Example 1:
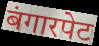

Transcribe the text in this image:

बंगारपेट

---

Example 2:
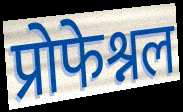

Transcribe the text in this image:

प्रोफेश्नल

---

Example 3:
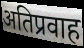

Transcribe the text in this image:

अतिप्रवाह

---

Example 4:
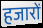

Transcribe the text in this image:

हजारों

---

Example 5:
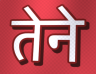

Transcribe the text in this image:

तेने